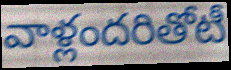
వాళ్లందరితోటీ